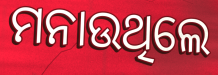
ମନାଉଥିଲେ